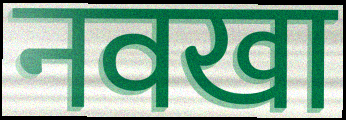
नवखा